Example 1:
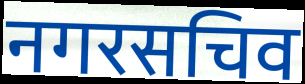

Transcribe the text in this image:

नगरसचिव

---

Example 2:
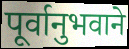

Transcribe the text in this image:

पूर्वानुभवाने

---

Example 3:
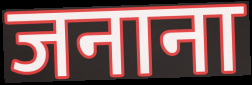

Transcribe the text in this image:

जनाना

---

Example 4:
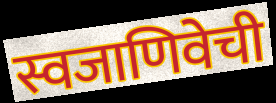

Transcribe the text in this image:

स्वजाणिवेची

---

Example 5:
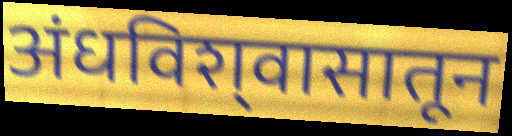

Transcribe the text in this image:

अंधविश्वासातून